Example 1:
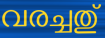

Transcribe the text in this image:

വരച്ചതു്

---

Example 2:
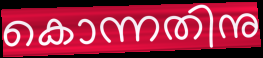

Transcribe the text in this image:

കൊന്നതിനു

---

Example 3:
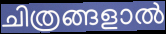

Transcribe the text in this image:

ചിത്രങ്ങളാൽ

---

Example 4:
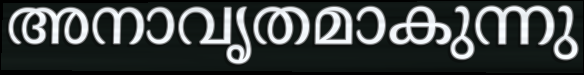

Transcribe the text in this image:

അനാവൃതമാകുന്നു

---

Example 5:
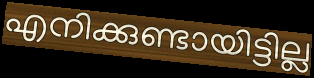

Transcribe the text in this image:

എനിക്കുണ്ടായിട്ടില്ല